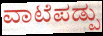
ವಾಟೆಪಡ್ಪು